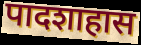
पादशाहास